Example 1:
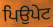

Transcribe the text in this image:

ਪਿਉਪੇਟ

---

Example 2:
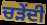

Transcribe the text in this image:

ਚੜੇਂਦੀ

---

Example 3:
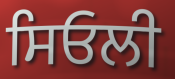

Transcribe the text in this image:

ਸਿਓਲੀ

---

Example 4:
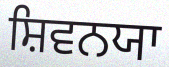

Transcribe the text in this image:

ਸ਼ਿਵਨਯਾ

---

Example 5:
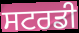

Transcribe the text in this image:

ਸਟਰਡੀ